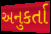
અનુકર્તા